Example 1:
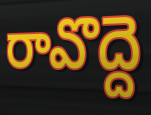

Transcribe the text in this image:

రావొద్దె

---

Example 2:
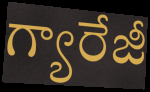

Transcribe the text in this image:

గ్యారేజీ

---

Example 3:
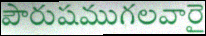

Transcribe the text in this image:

పౌరుషముగలవారై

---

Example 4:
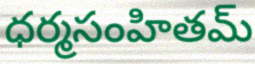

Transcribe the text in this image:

ధర్మసంహితమ్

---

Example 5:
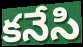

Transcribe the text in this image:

కనేసి